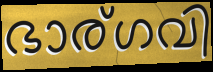
ഭാര്ഗവി